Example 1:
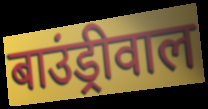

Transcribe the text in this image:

बाउंड्रीवाल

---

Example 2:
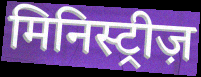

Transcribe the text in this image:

मिनिस्ट्रीज़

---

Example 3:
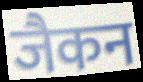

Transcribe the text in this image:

जैकन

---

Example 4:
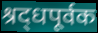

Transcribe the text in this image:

श्रद्धपूर्वक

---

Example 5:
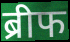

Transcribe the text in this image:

ब्रीफ